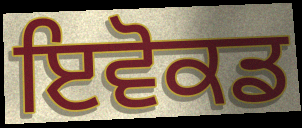
ਇਵੋਕਡ